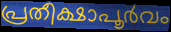
പ്രതീക്ഷാപൂർവം